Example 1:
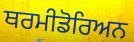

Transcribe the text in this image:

ਥਰਮੀਡੋਰਿਅਨ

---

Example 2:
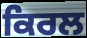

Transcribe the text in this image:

ਕਿਰਲ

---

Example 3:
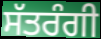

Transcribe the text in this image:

ਸੱਤਰੰਗੀ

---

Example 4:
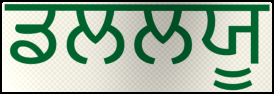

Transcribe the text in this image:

ਡਲਲਯੂ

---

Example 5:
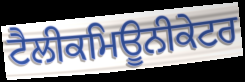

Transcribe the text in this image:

ਟੈਲੀਕਮਿਊਨੀਕੇਟਰ